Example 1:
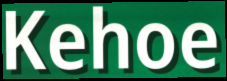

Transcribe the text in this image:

Kehoe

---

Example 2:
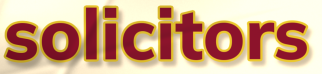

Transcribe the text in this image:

solicitors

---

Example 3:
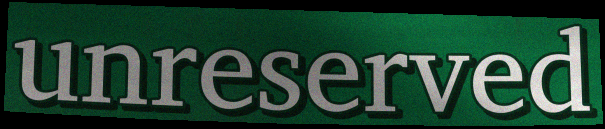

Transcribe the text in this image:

unreserved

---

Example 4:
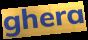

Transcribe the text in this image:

ghera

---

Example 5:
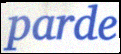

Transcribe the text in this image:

parde